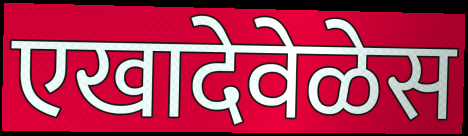
एखादेवेळेस